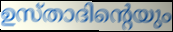
ഉസ്താദിന്റെയും